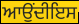
ਆਉਂਦੀਇਸ